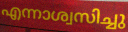
എന്നാശ്വസിച്ചു